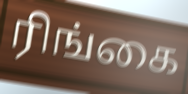
ரிங்கை